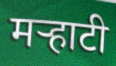
मर्‍हाटी